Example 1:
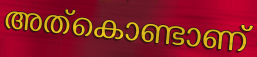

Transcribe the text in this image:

അത്കൊണ്ടാണ്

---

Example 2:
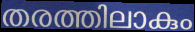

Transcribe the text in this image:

തരത്തിലാകും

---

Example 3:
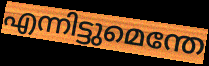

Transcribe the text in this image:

എന്നിട്ടുമെന്തേ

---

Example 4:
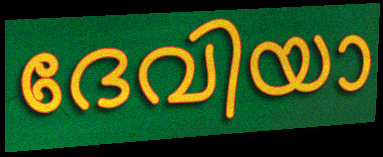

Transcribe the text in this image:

ദേവിയാ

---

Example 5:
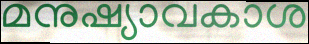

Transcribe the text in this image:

മനുഷ്യാവകാശ